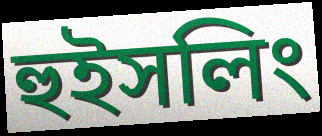
হুইসলিং